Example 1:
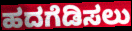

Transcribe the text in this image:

ಹದಗೆಡಿಸಲು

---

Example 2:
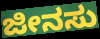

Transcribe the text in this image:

ಜೀನಸು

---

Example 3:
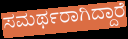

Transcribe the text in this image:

ಸಮರ್ಥರಾಗಿದ್ದಾರೆ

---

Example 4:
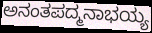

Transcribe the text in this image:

ಅನಂತಪದ್ಮನಾಭಯ್ಯ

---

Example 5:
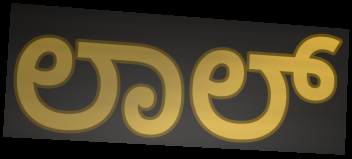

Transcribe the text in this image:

ಲಾಲ್